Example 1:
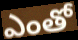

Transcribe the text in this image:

ఎంతో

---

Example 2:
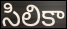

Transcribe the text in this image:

సిలికా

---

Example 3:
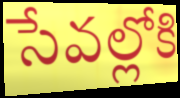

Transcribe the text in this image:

సేవల్లోకి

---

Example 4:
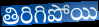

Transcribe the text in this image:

తిరిగిపోయి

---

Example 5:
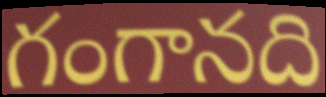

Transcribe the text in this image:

గంగానది